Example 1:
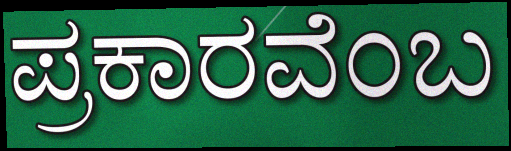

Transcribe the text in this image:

ಪ್ರಕಾರವೆಂಬ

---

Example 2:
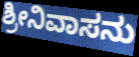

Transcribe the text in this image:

ಶ್ರೀನಿವಾಸನು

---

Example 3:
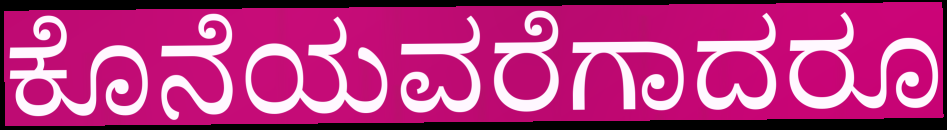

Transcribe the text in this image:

ಕೊನೆಯವರೆಗಾದರೂ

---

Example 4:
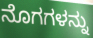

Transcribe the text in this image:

ನೊಗಗಳನ್ನು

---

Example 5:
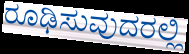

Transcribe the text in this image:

ರೂಢಿಸುವುದರಲ್ಲಿ